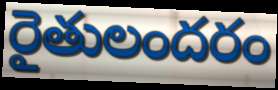
రైతులందరం